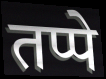
तप्पे